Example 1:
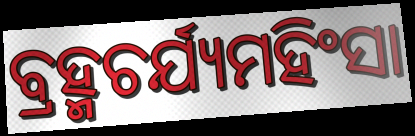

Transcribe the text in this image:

ବ୍ରହ୍ମଚର୍ଯ୍ୟମହିଂସା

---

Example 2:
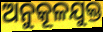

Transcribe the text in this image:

ଅନୁକୂଳଯୁକ୍ତ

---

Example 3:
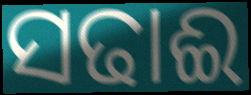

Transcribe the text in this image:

ସଢାଈ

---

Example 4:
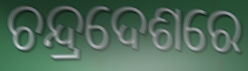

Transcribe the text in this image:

ଚନ୍ଦ୍ରଦେଶରେ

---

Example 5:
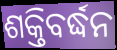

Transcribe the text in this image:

ଶକ୍ତିବର୍ଦ୍ଧନ